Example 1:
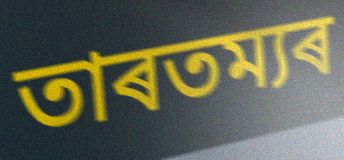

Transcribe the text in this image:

তাৰতম্যৰ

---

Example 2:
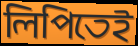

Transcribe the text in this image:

লিপিতেই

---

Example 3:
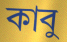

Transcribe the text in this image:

কাবু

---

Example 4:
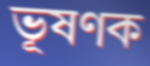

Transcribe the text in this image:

ভূষণক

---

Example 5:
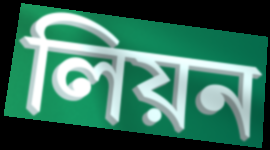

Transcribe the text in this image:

লিয়ন